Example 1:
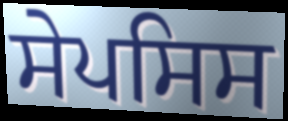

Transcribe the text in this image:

ਸੇਪਸਿਸ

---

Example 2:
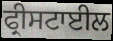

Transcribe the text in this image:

ਫ੍ਰੀਸਟਾਈਲ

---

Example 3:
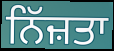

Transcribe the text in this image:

ਨਿੱਜ਼ਤਾ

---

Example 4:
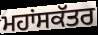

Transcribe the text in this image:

ਮਹਾਂਸਕੱਤਰ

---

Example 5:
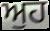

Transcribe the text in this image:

ਅੁਹ